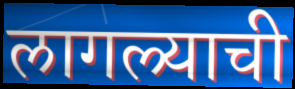
लागल्याची